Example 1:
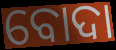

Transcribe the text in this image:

ବୋଦା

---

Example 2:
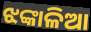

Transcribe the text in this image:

ଝଙ୍କାଳିଆ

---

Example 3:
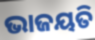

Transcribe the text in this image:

ଭାଜୟତି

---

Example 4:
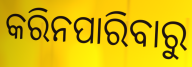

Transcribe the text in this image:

କରିନପାରିବାରୁ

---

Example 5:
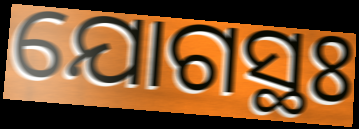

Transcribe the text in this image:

ଯୋଗସ୍ଥଃ